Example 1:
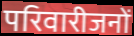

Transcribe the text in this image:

परिवारीजनों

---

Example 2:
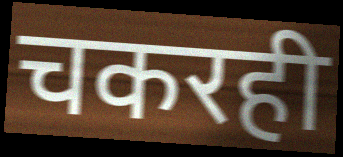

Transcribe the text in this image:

चकरही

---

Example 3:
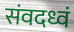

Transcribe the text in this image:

संवदध्वं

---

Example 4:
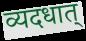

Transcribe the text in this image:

व्यदधात्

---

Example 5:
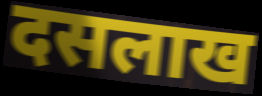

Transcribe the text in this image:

दसलाख